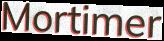
Mortimer